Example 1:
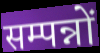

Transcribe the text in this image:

सम्पन्नों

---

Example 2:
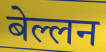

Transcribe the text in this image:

बेल्लन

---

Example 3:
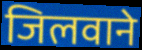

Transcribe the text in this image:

जिलवाने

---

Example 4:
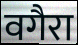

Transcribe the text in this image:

वगैरा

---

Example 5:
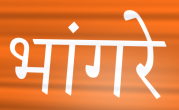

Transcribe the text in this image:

भांगरे